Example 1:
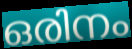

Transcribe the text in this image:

ഒരിനം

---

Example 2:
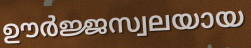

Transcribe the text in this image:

ഊർജ്ജസ്വലയായ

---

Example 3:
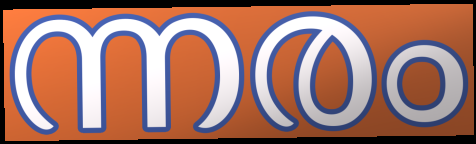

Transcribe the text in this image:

ന്നരം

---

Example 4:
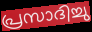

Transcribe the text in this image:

പ്രസാദിച്ചു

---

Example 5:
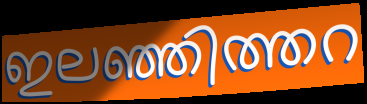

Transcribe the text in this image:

ഇലഞ്ഞിത്തറ